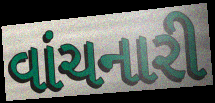
વાંચનારી